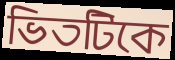
ভিতটিকে